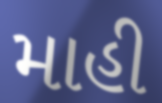
માહી